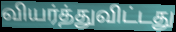
வியர்த்துவிட்டது